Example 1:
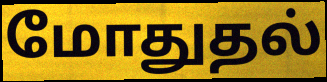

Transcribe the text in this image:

மோதுதல்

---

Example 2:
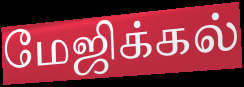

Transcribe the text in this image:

மேஜிக்கல்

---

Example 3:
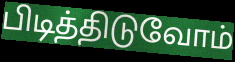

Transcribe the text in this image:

பிடித்திடுவோம்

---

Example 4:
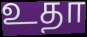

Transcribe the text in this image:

உதா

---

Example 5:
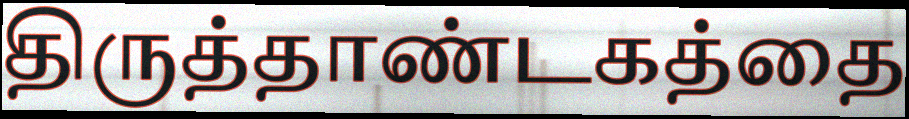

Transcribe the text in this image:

திருத்தாண்டகத்தை